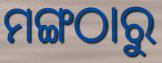
ମଙ୍ଗଠାରୁ